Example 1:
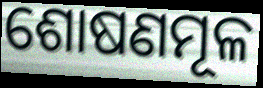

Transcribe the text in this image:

ଶୋଷଣମୂଳ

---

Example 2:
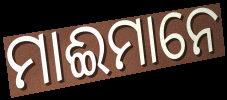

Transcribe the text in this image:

ମାଈମାନେ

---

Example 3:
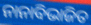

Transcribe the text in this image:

ନାନାବିଭାଜିତ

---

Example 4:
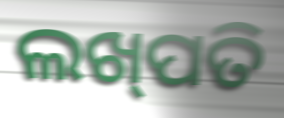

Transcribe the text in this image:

ଲଖ୍‌ପତି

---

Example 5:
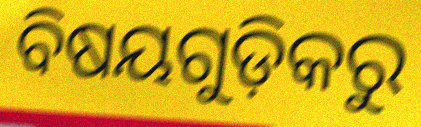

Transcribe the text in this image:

ବିଷୟଗୁଡ଼ିକରୁ